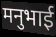
मनुभाई